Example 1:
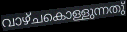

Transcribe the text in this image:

വാഴ്ചകൊള്ളുന്നതു്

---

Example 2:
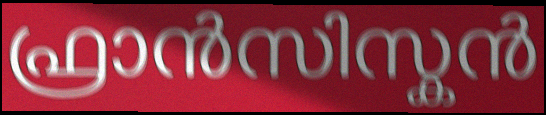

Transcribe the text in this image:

ഫ്രാൻസിസ്കൻ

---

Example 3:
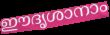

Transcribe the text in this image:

ഈദൃശാനാം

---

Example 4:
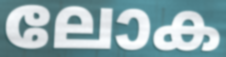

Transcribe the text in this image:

ലോക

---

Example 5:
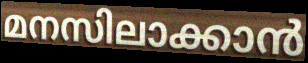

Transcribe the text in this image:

മനസിലാക്കാൻ